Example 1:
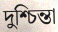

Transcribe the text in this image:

দুশ্চিন্তা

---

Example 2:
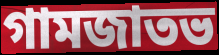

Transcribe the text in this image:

গামজাতভ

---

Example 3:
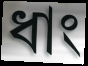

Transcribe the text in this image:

ধাং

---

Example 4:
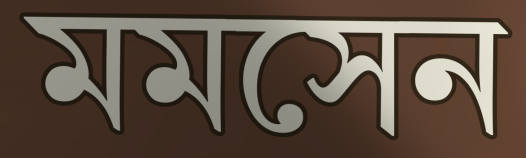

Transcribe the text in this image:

মমসেন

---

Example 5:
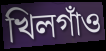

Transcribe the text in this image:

খিলগাঁও